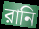
রানি